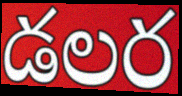
డలర